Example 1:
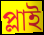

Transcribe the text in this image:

প্লাই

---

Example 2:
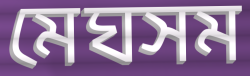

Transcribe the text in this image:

মেঘসম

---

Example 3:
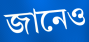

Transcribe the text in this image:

জানেও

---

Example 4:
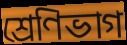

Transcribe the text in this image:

শ্রেণিভাগ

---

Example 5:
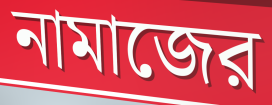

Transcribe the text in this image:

নামাজের